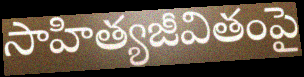
సాహిత్యజీవితంపై